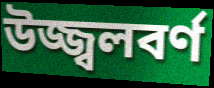
উজ্জ্বলবর্ণ